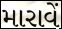
મારાવેં